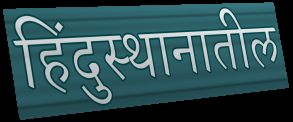
हिंदुस्थानातील